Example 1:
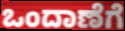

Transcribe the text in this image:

ಒಂದಾಣೆಗೆ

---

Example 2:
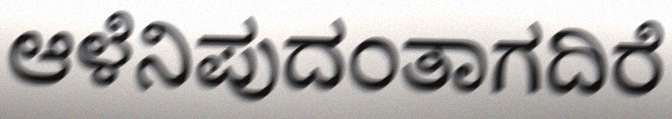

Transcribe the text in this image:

ಆಳೆನಿಪುದಂತಾಗದಿರೆ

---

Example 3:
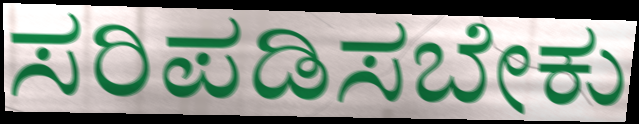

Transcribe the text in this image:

ಸರಿಪಡಿಸಬೇಕು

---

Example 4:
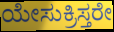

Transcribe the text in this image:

ಯೇಸುಕ್ರಿಸ್ತರೇ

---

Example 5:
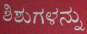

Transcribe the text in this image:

ಶಿಶುಗಳನ್ನು